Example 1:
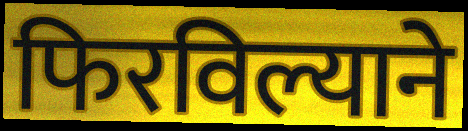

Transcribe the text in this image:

फिरविल्याने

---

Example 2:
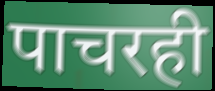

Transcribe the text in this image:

पाचरही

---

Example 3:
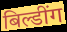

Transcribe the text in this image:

बिल्डींग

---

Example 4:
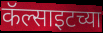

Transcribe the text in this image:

कॅल्साइटच्या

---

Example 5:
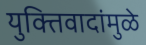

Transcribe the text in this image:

युक्तिवादांमुळे